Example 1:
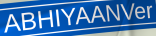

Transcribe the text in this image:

ABHIYAANVer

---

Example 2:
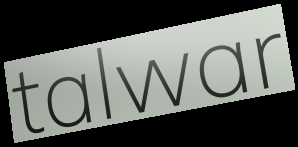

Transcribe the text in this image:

talwar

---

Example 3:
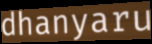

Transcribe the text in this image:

dhanyaru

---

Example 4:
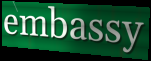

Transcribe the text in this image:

embassy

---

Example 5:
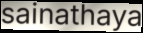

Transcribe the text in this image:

sainathaya